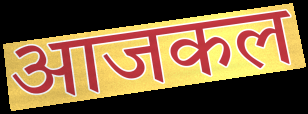
आजकल